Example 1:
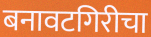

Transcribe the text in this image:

बनावटगिरीचा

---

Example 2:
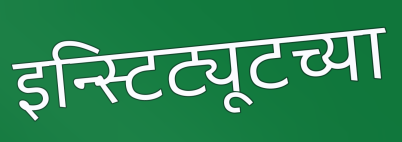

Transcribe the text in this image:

इन्स्टिट्यूटच्या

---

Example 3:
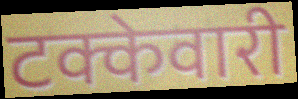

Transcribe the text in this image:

टक्केवारी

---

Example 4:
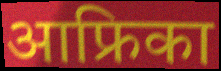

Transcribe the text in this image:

आफ्रिका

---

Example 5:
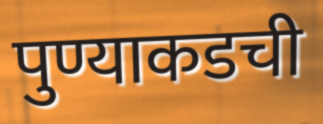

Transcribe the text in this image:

पुण्याकडची